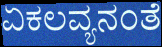
ಏಕಲವ್ಯನಂತೆ